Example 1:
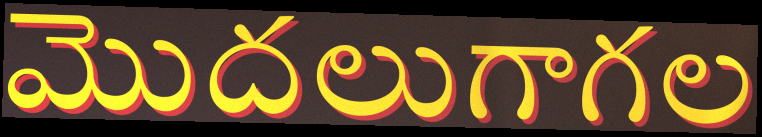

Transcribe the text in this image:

మొదలుగాగల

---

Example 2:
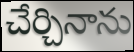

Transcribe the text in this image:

చేర్చినాను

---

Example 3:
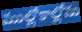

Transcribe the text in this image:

ముల్లోకాల్లోను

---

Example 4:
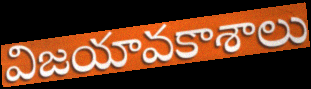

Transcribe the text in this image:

విజయావకాశాలు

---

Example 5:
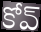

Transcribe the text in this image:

కోవ్